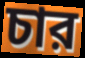
চার